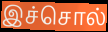
இச்சொல்